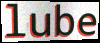
lube